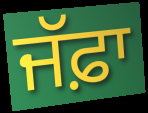
ਜੱਫ਼ਾ